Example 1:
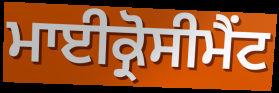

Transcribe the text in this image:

ਮਾਈਕ੍ਰੋਸੀਮੈਂਟ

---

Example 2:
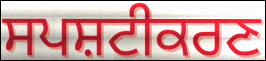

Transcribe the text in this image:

ਸਪਸ਼ਟੀਕਰਣ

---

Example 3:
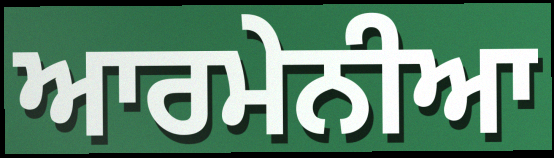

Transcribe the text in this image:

ਆਰਮੇਨੀਆ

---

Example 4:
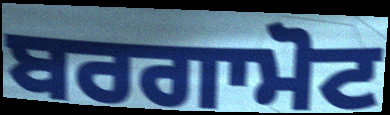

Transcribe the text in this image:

ਬਰਗਾਮੋਟ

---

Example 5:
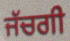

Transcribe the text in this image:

ਜੱਚਗੀ